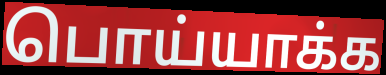
பொய்யாக்க